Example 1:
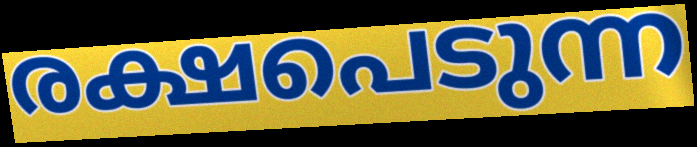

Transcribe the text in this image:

രക്ഷപെടുന്ന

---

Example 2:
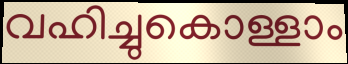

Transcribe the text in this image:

വഹിച്ചുകൊള്ളാം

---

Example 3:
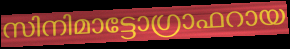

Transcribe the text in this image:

സിനിമാട്ടോഗ്രാഫറായ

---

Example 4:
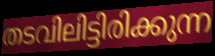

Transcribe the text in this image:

തടവിലിട്ടിരിക്കുന്ന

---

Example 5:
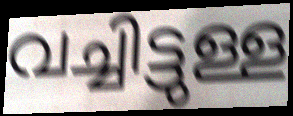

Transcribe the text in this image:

വച്ചിട്ടുള്ള